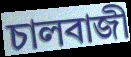
চালবাজী